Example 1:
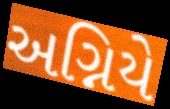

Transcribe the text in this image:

અગ્નિયે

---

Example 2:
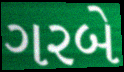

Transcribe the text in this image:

ગરબે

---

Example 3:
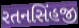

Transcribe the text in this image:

રતનસિંહજી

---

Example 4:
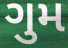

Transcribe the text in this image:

ગુમ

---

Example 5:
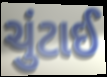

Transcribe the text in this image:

ચુંટાઈ